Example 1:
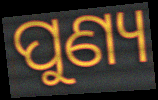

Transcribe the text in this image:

ପୁଣ୍ୟ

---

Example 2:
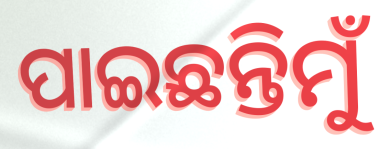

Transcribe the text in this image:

ପାଇଛନ୍ତିମୁଁ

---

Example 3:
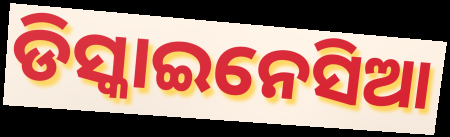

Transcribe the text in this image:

ଡିସ୍କାଇନେସିଆ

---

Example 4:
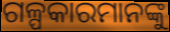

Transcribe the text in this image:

ଗଳ୍ପକାରମାନଙ୍କୁ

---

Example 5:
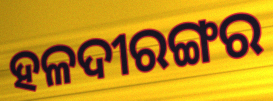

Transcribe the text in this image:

ହଳଦୀରଙ୍ଗର